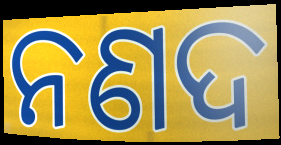
ନଣଦ